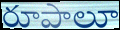
రూపాలూ